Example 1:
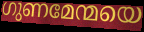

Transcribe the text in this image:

ഗുണമേന്മയെ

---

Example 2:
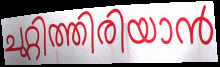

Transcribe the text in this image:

ചുറ്റിത്തിരിയാൻ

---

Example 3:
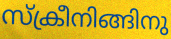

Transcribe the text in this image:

സ്ക്രീനിങ്ങിനു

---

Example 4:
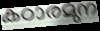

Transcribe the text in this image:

കഠാരമുന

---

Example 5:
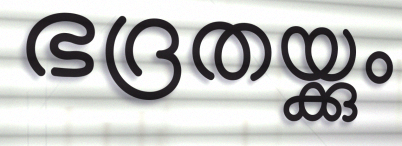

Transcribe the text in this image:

ഭദ്രതയ്ക്കും